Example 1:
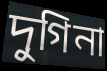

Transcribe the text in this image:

দুগিনা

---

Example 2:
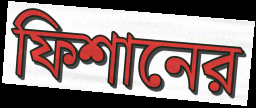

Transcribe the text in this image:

ফিশানের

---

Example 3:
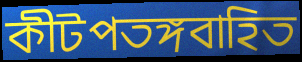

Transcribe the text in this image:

কীটপতঙ্গবাহিত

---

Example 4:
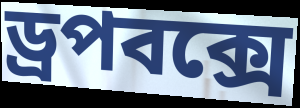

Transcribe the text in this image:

ড্রপবক্সে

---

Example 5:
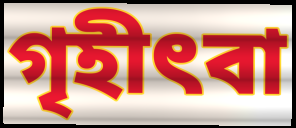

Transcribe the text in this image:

গৃহীৎবা